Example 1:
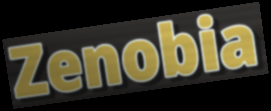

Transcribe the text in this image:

Zenobia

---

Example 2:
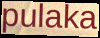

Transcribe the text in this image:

pulaka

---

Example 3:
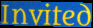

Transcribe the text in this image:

Invited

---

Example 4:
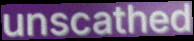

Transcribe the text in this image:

unscathed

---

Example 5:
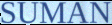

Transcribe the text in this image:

SUMAN